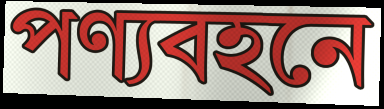
পণ্যবহনে